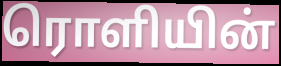
ரொளியின்